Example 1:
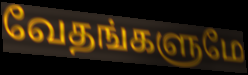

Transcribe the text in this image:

வேதங்களுமே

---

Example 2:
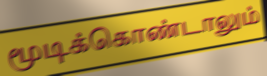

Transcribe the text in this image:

மூடிக்கொண்டாலும்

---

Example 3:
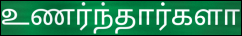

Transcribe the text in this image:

உணர்ந்தார்களா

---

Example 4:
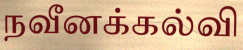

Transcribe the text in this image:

நவீனக்கல்வி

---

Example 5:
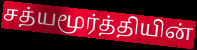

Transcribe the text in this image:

சத்யமூர்த்தியின்